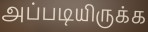
அப்படியிருக்க